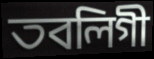
তবলিগী